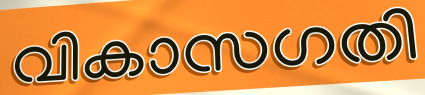
വികാസഗതി